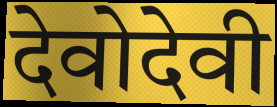
देवोदेवी